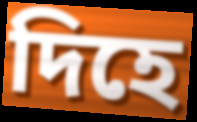
দিহে